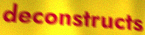
deconstructs